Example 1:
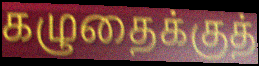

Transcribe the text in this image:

கழுதைக்குத்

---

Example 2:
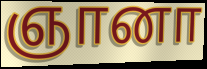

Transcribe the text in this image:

ஞானா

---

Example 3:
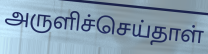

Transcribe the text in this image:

அருளிச்செய்தாள்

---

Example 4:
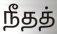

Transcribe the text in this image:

நீதத்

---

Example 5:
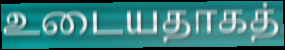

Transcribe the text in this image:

உடையதாகத்